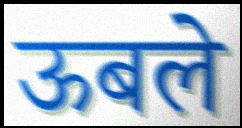
ऊबले